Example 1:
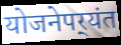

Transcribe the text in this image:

योजनेपर्यंत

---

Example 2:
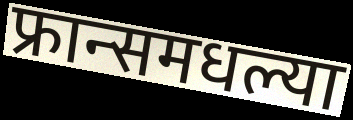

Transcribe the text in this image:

फ्रान्समधल्या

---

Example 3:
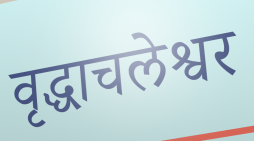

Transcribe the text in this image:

वृद्धाचलेश्वर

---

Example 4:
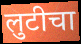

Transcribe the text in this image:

लुटीचा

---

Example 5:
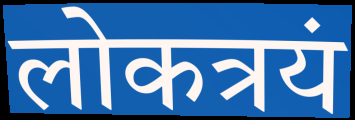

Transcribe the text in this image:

लोकत्रयं